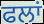
ਫਲਾਂ